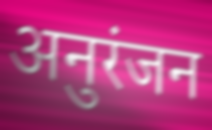
अनुरंजन